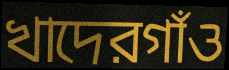
খাদেরগাঁও